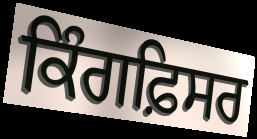
ਕਿੰਗਫ਼ਿਸਰ